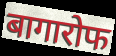
बागारोफ